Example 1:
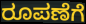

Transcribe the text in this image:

ರೂಪಣೆಗೆ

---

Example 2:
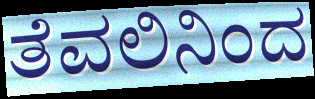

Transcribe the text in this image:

ತೆವಲಿನಿಂದ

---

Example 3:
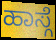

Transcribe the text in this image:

ಹಾಸ್ಗೆ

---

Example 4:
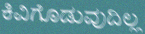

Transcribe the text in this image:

ಕಿವಿಗೊಡುವುದಿಲ್ಲ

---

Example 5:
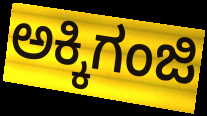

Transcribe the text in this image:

ಅಕ್ಕಿಗಂಜಿ